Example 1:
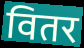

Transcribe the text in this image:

वितर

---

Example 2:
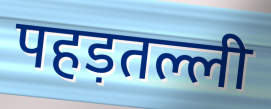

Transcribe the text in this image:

पहड़तल्ली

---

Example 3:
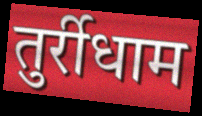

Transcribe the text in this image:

तुर्रीधाम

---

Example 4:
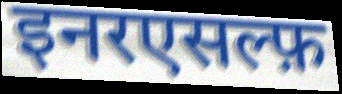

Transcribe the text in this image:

इनरएसल्फ़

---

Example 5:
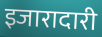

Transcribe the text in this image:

इजारादारी